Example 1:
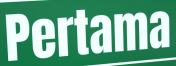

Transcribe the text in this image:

Pertama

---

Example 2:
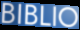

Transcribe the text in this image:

BIBLIO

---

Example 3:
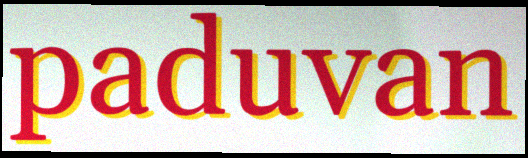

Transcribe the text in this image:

paduvan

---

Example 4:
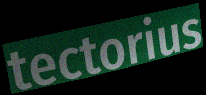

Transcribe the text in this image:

tectorius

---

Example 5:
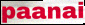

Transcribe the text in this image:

paanai